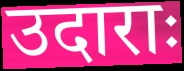
उदाराः